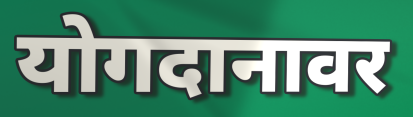
योगदानावर